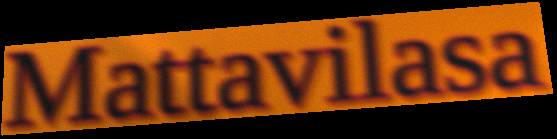
Mattavilasa